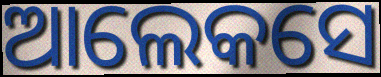
ଆଲେକସେ